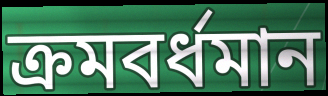
ক্ৰমবৰ্ধমান